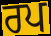
ਰਪ